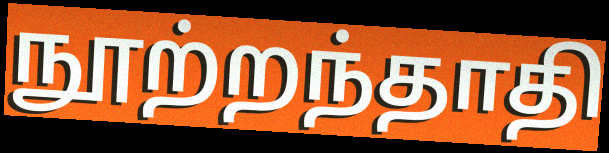
நூற்றந்தாதி